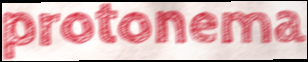
protonema